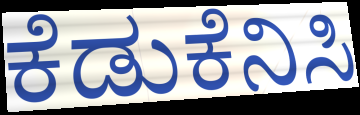
ಕೆಡುಕೆನಿಸಿ